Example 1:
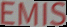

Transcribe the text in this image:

EMIS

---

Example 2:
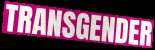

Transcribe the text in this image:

TRANSGENDER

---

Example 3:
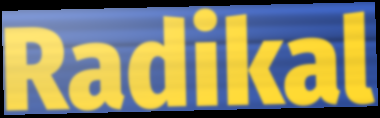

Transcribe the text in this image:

Radikal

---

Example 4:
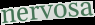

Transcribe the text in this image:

nervosa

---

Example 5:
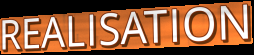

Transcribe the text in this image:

REALISATION